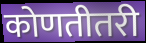
कोणतीतरी